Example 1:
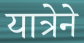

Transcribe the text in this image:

यात्रेने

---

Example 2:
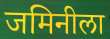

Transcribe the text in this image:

जमिनीला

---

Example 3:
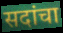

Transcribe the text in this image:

सदांचा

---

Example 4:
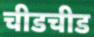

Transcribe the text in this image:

चीडचीड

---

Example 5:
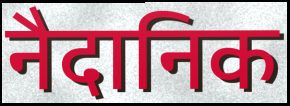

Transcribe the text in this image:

नैदानिक